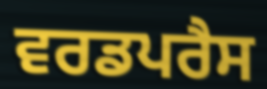
ਵਰਡਪਰੈਸ